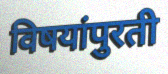
विषयांपुरती